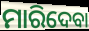
ମାରିଦେବା